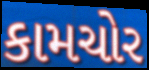
કામચોર